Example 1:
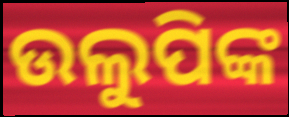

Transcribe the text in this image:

ଉଲୁପିଙ୍କ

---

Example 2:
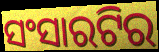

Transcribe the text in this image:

ସଂସାରଟିର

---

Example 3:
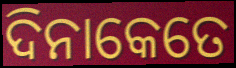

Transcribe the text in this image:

ଦିନାକେତେ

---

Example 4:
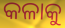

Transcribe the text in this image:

କଳାକୁ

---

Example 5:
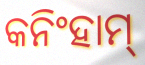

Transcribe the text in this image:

କନିଂହାମ୍